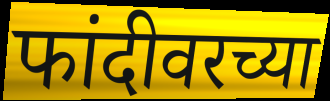
फांदीवरच्या